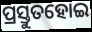
ପ୍ରସ୍ତୁତହୋଇ